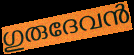
ഗുരുദേവൻ